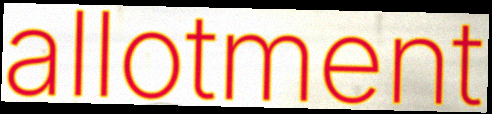
allotment